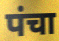
पंचा